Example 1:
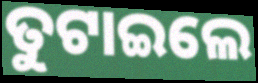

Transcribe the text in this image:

ତୁଟାଇଲେ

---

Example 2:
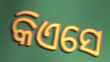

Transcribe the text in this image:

କିଏସେ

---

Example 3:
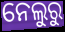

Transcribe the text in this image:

ନେଲୁରୁ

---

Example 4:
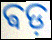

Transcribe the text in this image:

ଵଡ଼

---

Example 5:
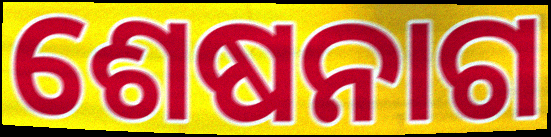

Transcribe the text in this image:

ଶେଷନାଗ